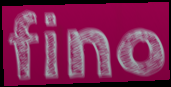
fino